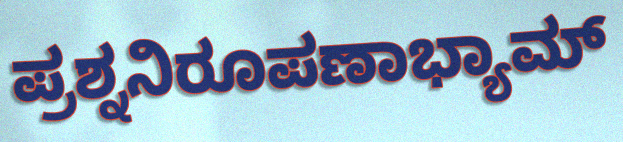
ಪ್ರಶ್ನನಿರೂಪಣಾಭ್ಯಾಮ್